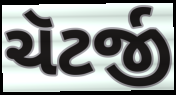
ચૅટર્જી